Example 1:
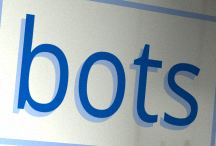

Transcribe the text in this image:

bots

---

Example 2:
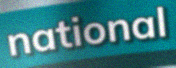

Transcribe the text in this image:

national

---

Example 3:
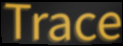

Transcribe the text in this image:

Trace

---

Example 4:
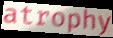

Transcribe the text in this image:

atrophy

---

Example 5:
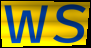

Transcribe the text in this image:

ws